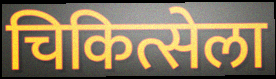
चिकित्सेला